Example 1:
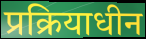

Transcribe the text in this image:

प्रक्रियाधीन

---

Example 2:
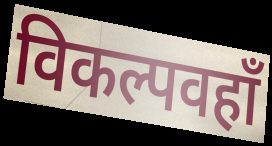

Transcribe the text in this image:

विकल्पवहाँ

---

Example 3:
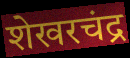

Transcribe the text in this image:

शेखरचंद्र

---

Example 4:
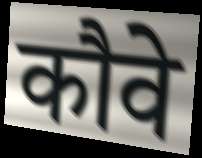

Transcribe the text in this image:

कौवे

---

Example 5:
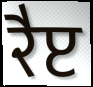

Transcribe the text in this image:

रैप्ट